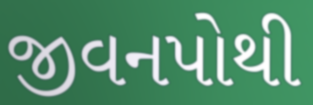
જીવનપોથી